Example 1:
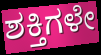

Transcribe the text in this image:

ಶಕ್ತಿಗಳೇ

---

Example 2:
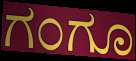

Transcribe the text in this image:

ಗಂಗೂ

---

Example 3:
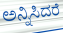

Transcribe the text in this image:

ಅನ್ನಿಸಿದರೆ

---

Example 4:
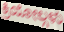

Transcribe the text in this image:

ಕ್ರಿಯೋಲ್ಗಳು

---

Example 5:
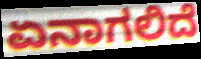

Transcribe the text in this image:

ಏನಾಗಲಿದೆ